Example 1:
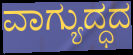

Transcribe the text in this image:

ವಾಗ್ಯುದ್ಧದ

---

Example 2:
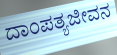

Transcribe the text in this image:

ದಾಂಪತ್ಯಜೀವನ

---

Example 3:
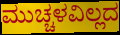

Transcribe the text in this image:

ಮುಚ್ಚಳವಿಲ್ಲದ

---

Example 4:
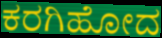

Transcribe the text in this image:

ಕರಗಿಹೋದ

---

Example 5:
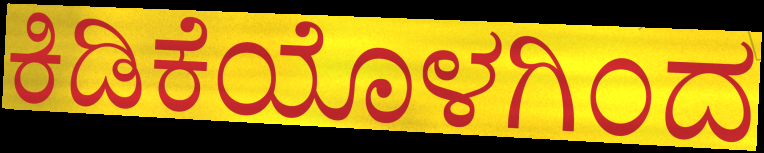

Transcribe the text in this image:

ಕಿಡಿಕೆಯೊಳಗಿಂದ